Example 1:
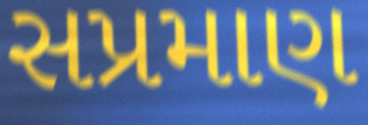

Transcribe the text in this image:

સપ્રમાણ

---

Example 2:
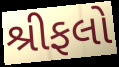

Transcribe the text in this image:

શ્રીફલો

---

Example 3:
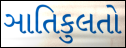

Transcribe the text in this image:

ઞાતિકુલતો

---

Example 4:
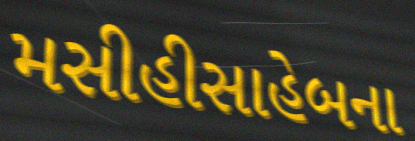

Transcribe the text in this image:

મસીહીસાહેબના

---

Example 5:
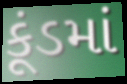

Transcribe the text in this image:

કૂંડમાં